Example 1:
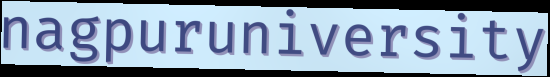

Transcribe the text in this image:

nagpuruniversity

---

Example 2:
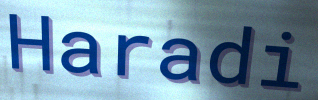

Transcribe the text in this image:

Haradi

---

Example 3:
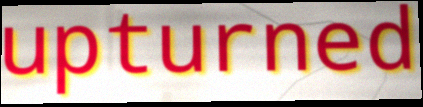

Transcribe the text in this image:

upturned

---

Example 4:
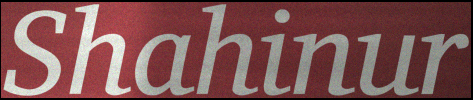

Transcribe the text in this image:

Shahinur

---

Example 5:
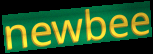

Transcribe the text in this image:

newbee